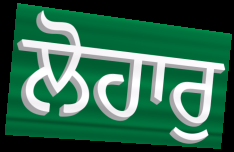
ਲੋਹਾਰੁ